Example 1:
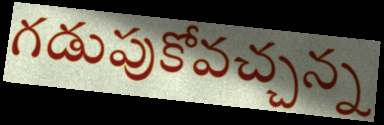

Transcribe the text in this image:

గడుపుకోవచ్చన్న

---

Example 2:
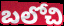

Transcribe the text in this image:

బలోచి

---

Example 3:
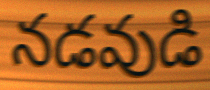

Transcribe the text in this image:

నడవుడి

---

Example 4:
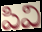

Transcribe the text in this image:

పివి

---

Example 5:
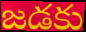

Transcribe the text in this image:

జడకు